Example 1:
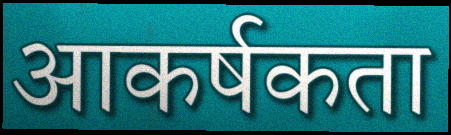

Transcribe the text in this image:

आकर्षकता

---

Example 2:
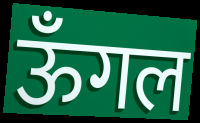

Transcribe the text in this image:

ऊँगल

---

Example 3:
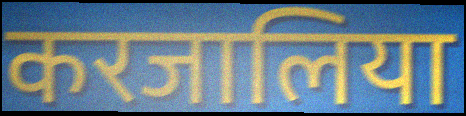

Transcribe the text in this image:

करजालिया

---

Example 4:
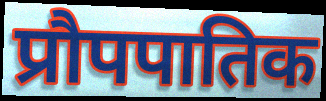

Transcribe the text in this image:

प्रौपपातिक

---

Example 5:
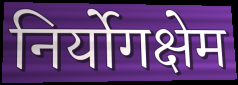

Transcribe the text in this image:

निर्योगक्षेम